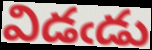
విడఁడు